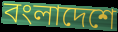
বংলাদেশে